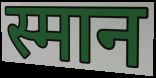
स्मान